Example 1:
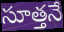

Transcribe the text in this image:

సూత్తనే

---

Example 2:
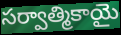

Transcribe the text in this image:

సర్వాత్మికాయై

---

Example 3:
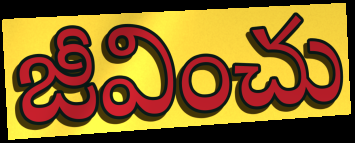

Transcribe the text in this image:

జీవించు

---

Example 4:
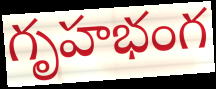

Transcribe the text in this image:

గృహభంగ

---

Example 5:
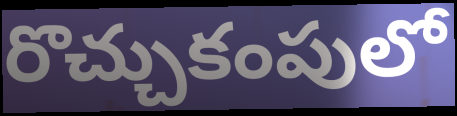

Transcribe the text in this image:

రొచ్చుకంపులో